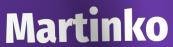
Martinko